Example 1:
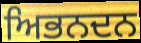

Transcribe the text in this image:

ਅਿਭਨਦਨ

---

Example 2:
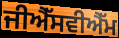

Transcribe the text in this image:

ਜੀਐੱਸਵੀਐੱਮ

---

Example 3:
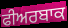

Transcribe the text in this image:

ਫੀਅਰਬਾਕ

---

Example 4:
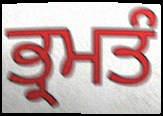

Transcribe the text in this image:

ਭ੍ਰਮਤੰ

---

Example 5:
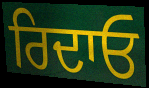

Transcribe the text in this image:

ਰਿਦਾਓ